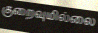
குறைவுமில்லை